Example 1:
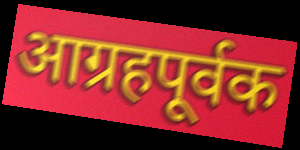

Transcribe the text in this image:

आग्रहपूर्वक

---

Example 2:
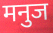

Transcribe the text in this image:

मनुज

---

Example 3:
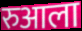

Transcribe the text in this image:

रुआला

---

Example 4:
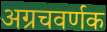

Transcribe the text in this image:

अग्रचवर्णक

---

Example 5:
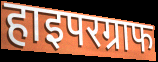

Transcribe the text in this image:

हाइपरग्राफ